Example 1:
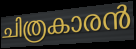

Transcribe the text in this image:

ചിത്രകാരൻ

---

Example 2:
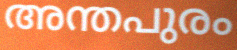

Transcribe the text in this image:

അന്തപുരം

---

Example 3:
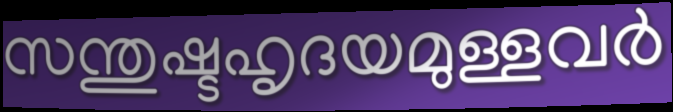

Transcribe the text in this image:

സന്തുഷ്ടഹൃദയമുള്ളവർ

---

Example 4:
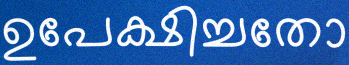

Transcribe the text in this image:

ഉപേക്ഷിച്ചതോ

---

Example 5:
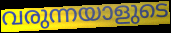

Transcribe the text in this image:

വരുന്നയാളുടെ